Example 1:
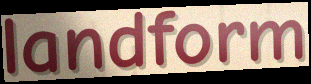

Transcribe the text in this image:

landform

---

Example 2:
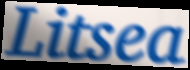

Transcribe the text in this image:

Litsea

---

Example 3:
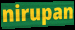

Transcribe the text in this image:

nirupan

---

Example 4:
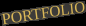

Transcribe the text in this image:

PORTFOLIO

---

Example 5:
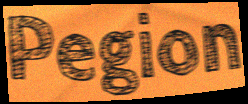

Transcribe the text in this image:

Pegion